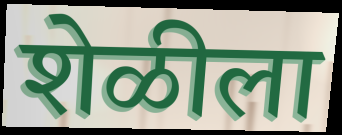
शेळीला